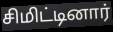
சிமிட்டினார்